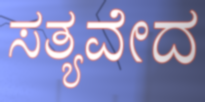
ಸತ್ಯವೇದ